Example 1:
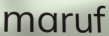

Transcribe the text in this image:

maruf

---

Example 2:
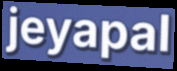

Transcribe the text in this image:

jeyapal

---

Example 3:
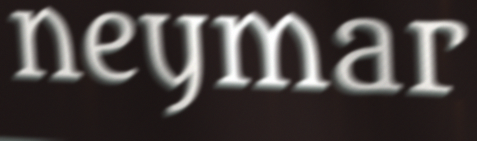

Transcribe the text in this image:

neymar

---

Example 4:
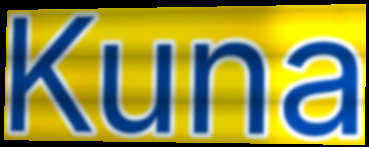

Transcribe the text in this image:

Kuna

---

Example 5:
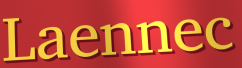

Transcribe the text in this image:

Laennec